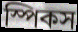
স্পিকস